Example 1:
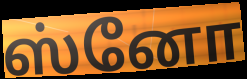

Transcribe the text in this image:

ஸ்னோ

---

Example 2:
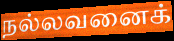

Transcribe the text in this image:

நல்லவனைக்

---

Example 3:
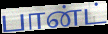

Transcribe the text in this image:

பான்ட்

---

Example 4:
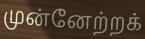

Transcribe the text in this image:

முன்னேற்றக்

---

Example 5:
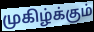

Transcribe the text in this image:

முகிழ்க்கும்